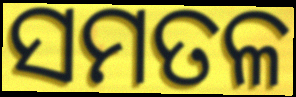
ସମତଳ